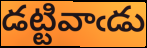
డట్టివాఁడు